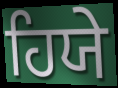
ਹਿਯੇ